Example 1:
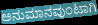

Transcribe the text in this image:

ಅನುಮಾನವುಂಟಾಗಿ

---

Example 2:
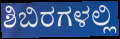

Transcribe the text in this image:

ಶಿಬಿರಗಳಲ್ಲಿ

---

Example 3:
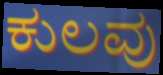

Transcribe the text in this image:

ಕುಲವು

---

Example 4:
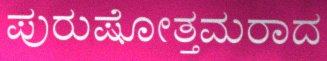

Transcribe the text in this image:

ಪುರುಷೋತ್ತಮರಾದ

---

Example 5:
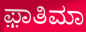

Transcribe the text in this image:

ಫ಼ಾತಿಮಾ